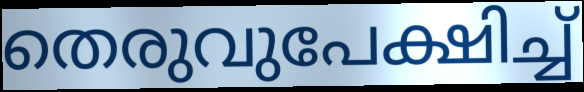
തെരുവുപേക്ഷിച്ച്